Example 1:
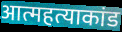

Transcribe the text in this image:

आत्महत्याकांड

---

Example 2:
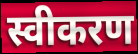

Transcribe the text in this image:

स्वीकरण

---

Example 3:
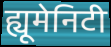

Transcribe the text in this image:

ह्यूमेनिटी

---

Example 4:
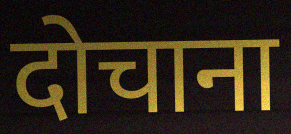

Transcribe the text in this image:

दोचाना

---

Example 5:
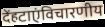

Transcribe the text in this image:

देंहटाएंविचारणीय